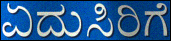
ಏದುಸಿರಿಗೆ